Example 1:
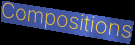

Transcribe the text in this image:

Compositions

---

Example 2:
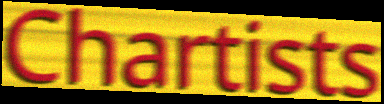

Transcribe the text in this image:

Chartists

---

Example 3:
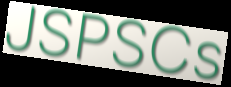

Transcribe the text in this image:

JSPSCs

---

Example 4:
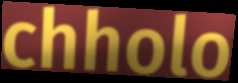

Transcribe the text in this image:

chholo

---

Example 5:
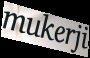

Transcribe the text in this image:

mukerji